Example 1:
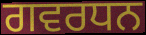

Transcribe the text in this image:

ਗਵਰਧਨ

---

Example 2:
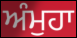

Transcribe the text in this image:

ਅੰਮੁਹਾ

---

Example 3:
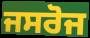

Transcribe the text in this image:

ਜਸਰੋਜ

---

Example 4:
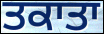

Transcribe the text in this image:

ਤਕਾਤਾ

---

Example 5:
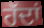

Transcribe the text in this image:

ਹੱਦਾਂ